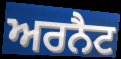
ਅਰਨੈਟ